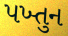
પખ્તુન